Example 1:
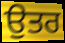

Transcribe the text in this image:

ਉੁਤਰ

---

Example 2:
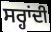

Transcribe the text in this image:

ਸਰ੍ਹਾਂਦੀ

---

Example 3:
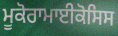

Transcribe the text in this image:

ਮੂਕੋਰਾਮਾਈਕੋਸਿਸ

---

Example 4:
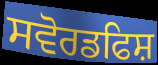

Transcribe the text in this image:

ਸਵੋਰਡਫਿਸ਼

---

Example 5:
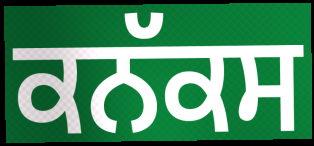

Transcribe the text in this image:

ਕਨੱਕਸ